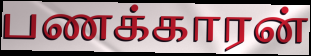
பணக்காரன்